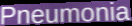
Pneumonia